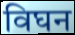
विघन